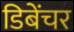
डिबेंचर